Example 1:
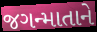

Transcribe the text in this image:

જગન્માતાને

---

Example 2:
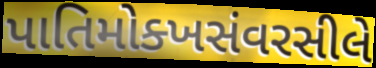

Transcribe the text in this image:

પાતિમોક્ખસંવરસીલે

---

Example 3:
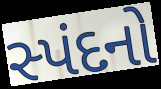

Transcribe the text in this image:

સ્પંદનો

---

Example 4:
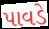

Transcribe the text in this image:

પાવડે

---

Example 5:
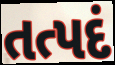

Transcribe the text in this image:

તત્પદં